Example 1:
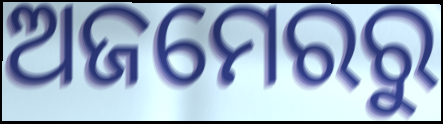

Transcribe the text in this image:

ଅଜମେରରୁ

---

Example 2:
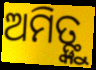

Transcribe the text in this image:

ଅମିତ୍ଙ୍କୁ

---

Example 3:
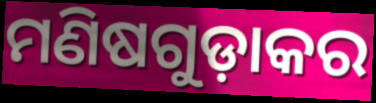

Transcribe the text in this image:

ମଣିଷଗୁଡ଼ାକର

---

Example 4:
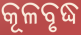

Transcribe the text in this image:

କୂଳବୃଦ୍ଧ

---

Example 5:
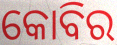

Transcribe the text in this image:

କୋବିର